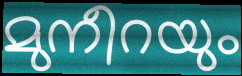
മുനീറയും